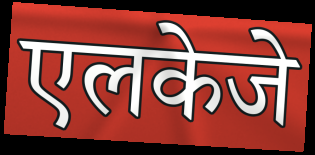
एलकेजे